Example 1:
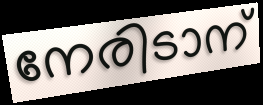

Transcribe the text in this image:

നേരിടാന്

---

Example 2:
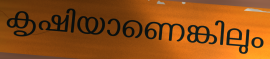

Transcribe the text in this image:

കൃഷിയാണെങ്കിലും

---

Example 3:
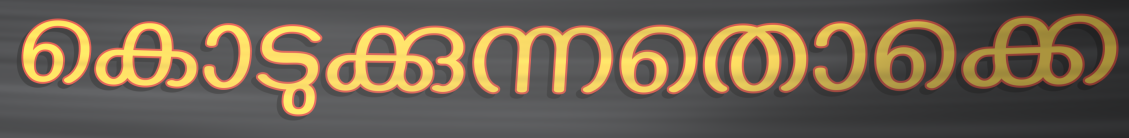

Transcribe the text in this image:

കൊടുക്കുന്നതൊക്കെ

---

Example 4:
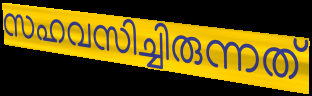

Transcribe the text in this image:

സഹവസിച്ചിരുന്നത്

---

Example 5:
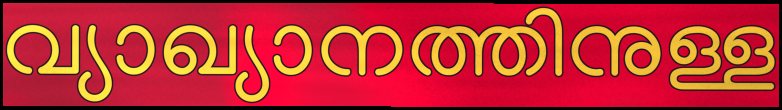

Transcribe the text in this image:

വ്യാഖ്യാനത്തിനുള്ള